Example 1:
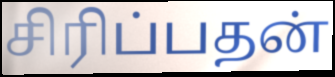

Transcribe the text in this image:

சிரிப்பதன்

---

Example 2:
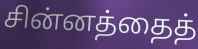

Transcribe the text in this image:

சின்னத்தைத்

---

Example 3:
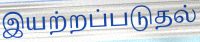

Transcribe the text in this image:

இயற்றப்படுதல்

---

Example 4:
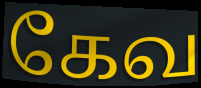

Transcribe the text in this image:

கேவ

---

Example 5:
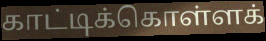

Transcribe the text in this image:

காட்டிக்கொள்ளக்